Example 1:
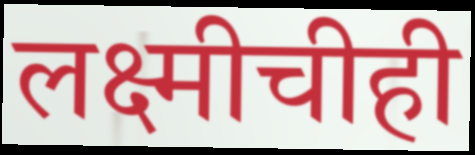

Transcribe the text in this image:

लक्ष्मीचीही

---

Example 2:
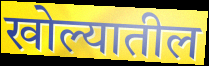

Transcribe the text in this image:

खोल्यातील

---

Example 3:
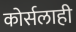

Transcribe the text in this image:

कोर्सलाही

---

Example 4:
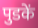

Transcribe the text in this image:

पुडकें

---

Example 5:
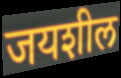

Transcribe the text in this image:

जयशील